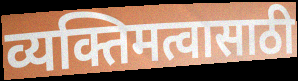
व्यक्तिमत्वासाठी